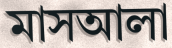
মাসআলা